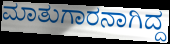
ಮಾತುಗಾರನಾಗಿದ್ದ